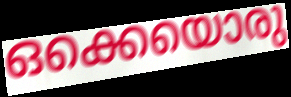
ഒക്കെയൊരു